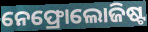
ନେଫ୍ରୋଲୋଜିଷ୍ଟ